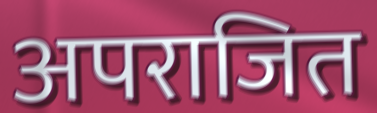
अपराजित